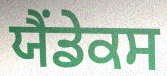
ਯੈਂਡੇਕਸ